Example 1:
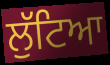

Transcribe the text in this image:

ਲੁੱਟਿਆ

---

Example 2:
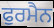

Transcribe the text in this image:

ਫੁਰਮੈਨ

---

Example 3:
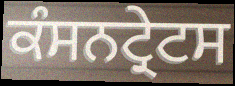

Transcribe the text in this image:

ਕੰਸਨਟ੍ਰੇਟਸ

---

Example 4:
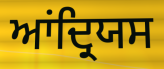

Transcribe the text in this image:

ਆਂਦ੍ਰਿਯਸ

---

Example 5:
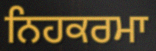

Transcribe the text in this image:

ਨਿਹਕਰਮਾ